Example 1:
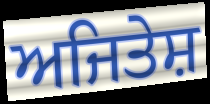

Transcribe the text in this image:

ਅਜਿਤੇਸ਼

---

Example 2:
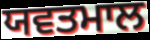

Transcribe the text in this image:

ਯਵਤਮਾਲ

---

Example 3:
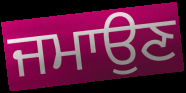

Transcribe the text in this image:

ਜਮਾਉਣ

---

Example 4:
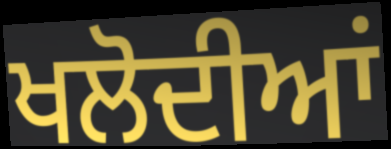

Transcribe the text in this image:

ਖਲੋਦੀਆਂ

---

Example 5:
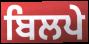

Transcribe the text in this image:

ਬਿਲਪੇ